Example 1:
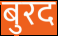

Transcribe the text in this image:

बुरद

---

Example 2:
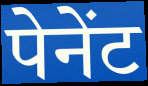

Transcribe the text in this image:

पेनेंट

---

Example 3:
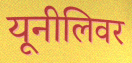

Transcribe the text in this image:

यूनीलिवर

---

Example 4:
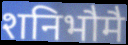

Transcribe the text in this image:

शनिभौमै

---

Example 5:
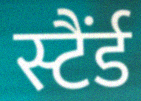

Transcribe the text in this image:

स्टैंर्ड